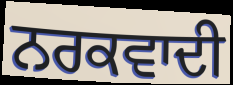
ਨਰਕਵਾਦੀ